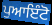
ਪੁਆਇੰਟੋ